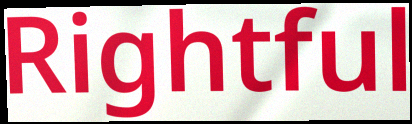
Rightful